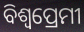
ବିଶ୍ବପ୍ରେମୀ